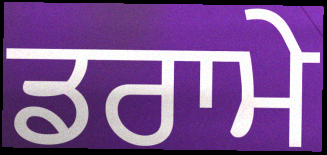
ਡਰਾਮੇ